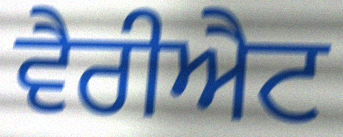
ਵੈਰੀਐਟ